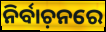
ନିର୍ବାଚ଼ନରେ